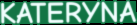
KATERYNA